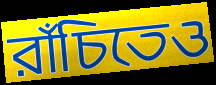
রাঁচিতেও